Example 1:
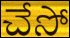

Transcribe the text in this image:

చేసో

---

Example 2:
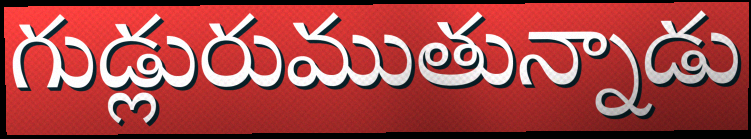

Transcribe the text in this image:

గుడ్లురుముతున్నాడు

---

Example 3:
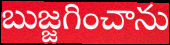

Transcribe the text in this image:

బుజ్జగించాను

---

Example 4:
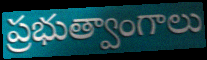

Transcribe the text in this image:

ప్రభుత్వాంగాలు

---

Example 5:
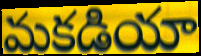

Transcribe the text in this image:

మకడియా